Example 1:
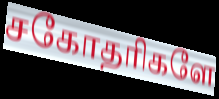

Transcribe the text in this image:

சகோதரிகளே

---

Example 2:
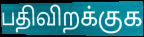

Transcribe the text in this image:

பதிவிறக்குக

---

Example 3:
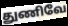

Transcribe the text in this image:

துணிவே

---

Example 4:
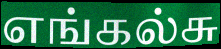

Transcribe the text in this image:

எங்கல்சு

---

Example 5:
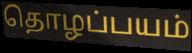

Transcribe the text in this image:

தொழப்பயம்